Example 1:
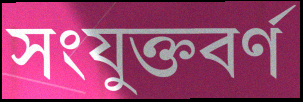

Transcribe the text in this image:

সংযুক্তবর্ণ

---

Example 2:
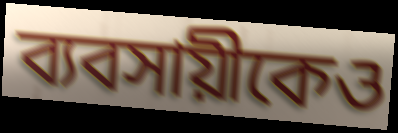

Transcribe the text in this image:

ব্যবসায়ীকেও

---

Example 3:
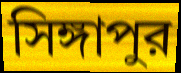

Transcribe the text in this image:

সিঙ্গাপুর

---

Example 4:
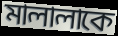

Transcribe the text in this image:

মালালাকে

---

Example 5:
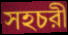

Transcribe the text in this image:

সহচরী